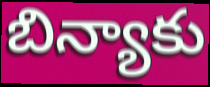
బిన్యాకు